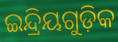
ଇନ୍ଦ୍ରିୟଗୁଡ଼ିକ